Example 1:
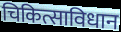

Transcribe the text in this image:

चिकित्साविधान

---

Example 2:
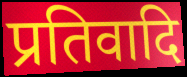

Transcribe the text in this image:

प्रतिवादि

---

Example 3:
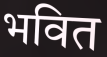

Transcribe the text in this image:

भवित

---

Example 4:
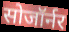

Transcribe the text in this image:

सोजॉर्नर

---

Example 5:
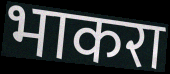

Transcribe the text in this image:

भाकरा